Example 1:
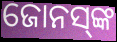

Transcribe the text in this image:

ଜୋନସ୍‌ଙ୍କ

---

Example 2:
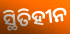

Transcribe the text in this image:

ସ୍ଥିତିହୀନ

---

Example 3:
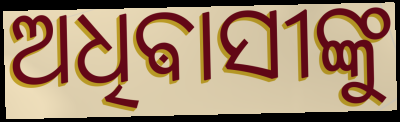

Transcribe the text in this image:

ଅଧିଵାସୀଙ୍କୁ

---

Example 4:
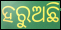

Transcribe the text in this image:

ହରୁଅଛି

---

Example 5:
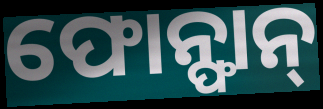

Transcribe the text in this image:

ଫୋନ୍ଫାନ୍